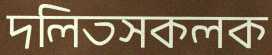
দলিতসকলক